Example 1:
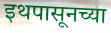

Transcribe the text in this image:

इथपासूनच्या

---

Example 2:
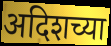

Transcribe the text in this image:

अदिशच्या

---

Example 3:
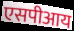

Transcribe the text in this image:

एसपीआय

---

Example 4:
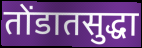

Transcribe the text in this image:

तोंडातसुद्धा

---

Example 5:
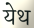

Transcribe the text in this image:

येथ